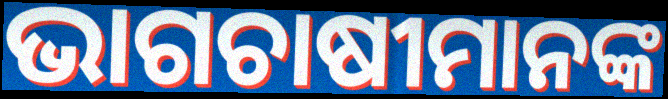
ଭାଗଚାଷୀମାନଙ୍କ